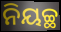
ନିୟଚ୍ଛ